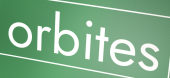
orbites